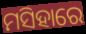
ମସିହାରେ